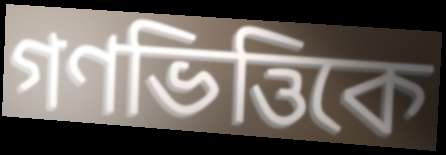
গণভিত্তিকে